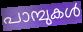
പാമ്പുകൾ